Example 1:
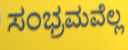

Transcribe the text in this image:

ಸಂಭ್ರಮವೆಲ್ಲ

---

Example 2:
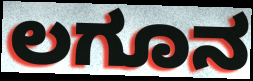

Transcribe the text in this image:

ಲಗೂನ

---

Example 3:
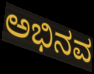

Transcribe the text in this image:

ಅಭಿನವ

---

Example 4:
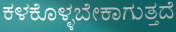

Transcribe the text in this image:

ಕಳಕೊಳ್ಳಬೇಕಾಗುತ್ತದೆ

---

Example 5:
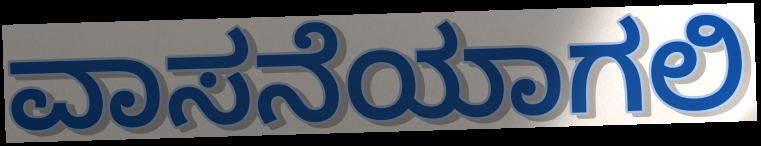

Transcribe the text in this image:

ವಾಸನೆಯಾಗಲಿ